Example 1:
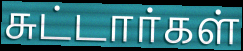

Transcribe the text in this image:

சுட்டார்கள்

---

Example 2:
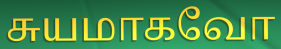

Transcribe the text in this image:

சுயமாகவோ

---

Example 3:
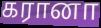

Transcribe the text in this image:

கரானா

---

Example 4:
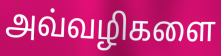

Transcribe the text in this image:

அவ்வழிகளை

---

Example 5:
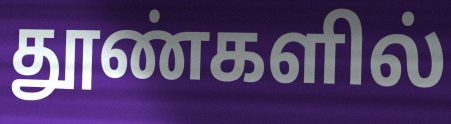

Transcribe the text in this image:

தூண்களில்